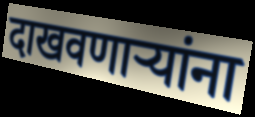
दाखवणाऱ्यांना